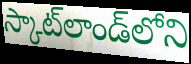
స్కాట్‌లాండ్‌లోని